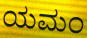
ಯಮಂ